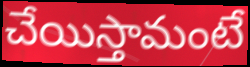
చేయిస్తామంటే